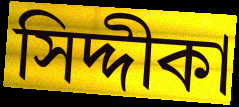
সিদ্দীকা